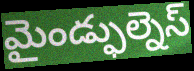
మైండ్ఫుల్నెస్